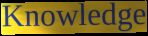
Knowledge